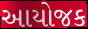
આયોજક